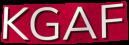
KGAF